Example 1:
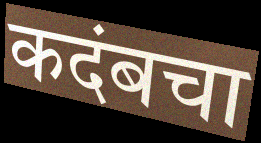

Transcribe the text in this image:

कदंबचा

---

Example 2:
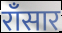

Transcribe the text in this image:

राँसार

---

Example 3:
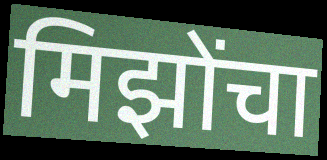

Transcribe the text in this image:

मिझोंचा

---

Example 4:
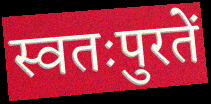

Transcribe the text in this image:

स्वतःपुरतें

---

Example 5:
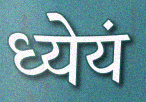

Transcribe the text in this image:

ध्येयं